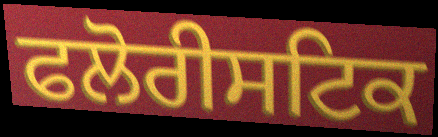
ਫਲੋਰੀਸਟਿਕ